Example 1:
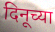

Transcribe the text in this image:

दिनूच्या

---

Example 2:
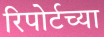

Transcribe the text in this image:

रिपोर्टच्या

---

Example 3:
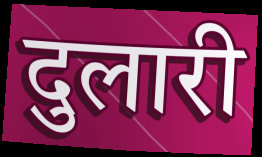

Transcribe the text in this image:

दुलारी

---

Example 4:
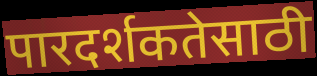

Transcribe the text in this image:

पारदर्शकतेसाठी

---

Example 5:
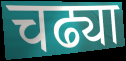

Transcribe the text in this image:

चढ्या